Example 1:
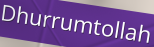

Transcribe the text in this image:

Dhurrumtollah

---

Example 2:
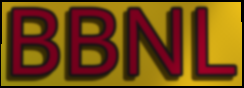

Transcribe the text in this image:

BBNL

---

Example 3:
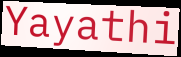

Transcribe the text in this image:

Yayathi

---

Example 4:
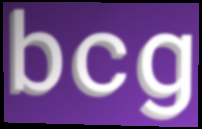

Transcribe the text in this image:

bcg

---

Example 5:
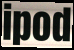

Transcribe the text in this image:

ipod